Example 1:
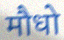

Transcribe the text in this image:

मौधो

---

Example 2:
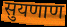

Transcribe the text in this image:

सुयणाण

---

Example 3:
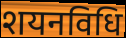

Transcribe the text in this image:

शयनविधि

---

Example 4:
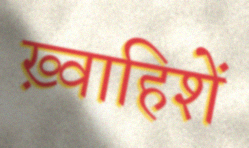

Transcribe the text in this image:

ख़्वाहिशें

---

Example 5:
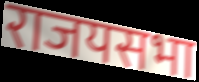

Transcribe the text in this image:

राजयसभा